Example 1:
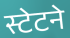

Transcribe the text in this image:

स्टेटने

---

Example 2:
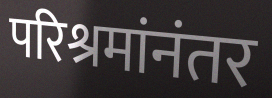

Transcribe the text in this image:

परिश्रमांनंतर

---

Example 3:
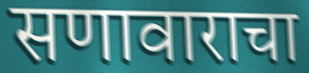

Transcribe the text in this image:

सणावाराचा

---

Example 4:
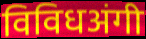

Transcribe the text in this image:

विविधअंगी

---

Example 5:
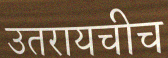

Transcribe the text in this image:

उतरायचीच